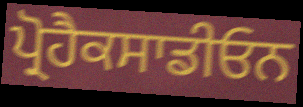
ਪ੍ਰੋਹੈਕਸਾਡੀਓਨ